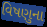
વિષણુના